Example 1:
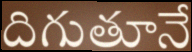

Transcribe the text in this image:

దిగుతూనే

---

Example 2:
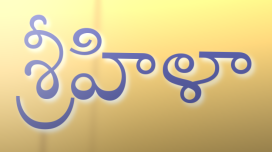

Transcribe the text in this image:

శ్రీహిళా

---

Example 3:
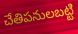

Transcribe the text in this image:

చేతిపనులబట్టి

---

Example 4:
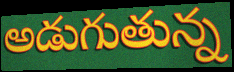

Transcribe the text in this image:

అడుగుతున్న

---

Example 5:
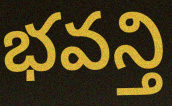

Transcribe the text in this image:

భవన్తి